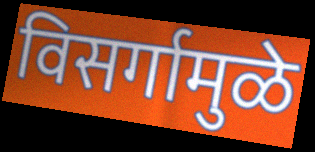
विसर्गामुळे